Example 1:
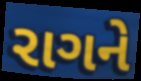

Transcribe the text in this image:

રાગને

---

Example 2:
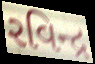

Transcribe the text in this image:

રવિન્દ્ર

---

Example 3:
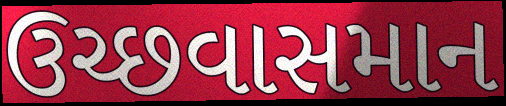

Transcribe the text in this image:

ઉચ્છવાસમાન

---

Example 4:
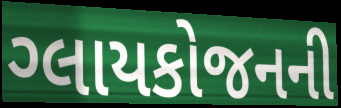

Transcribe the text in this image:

ગ્લાયકોજનની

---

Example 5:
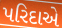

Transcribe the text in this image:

પરિદાએ